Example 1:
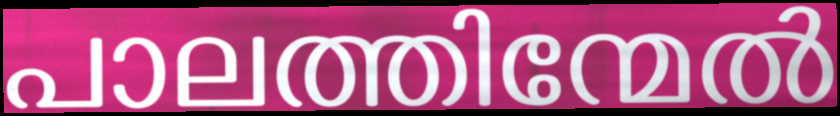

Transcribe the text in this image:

പാലത്തിന്മേൽ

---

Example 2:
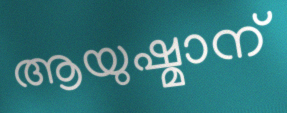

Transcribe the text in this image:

ആയുഷ്മാന്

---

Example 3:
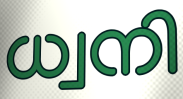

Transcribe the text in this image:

ധ്വനി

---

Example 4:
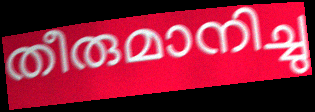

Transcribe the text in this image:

തീരുമാനിച്ചു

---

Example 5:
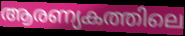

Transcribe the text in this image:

ആരണ്യകത്തിലെ